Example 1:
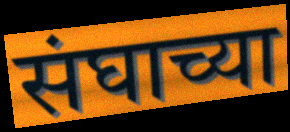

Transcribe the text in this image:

संघाच्या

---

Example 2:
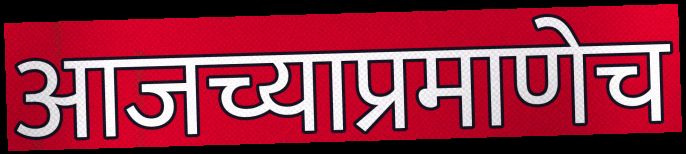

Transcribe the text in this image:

आजच्याप्रमाणेच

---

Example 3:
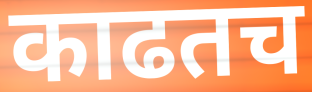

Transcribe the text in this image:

काढतच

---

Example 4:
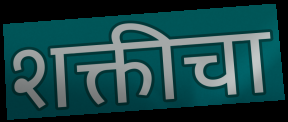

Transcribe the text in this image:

शक्तीचा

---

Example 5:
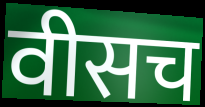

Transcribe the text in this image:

वीसच